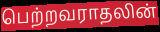
பெற்றவராதலின்